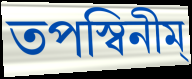
তপস্বিনীম্